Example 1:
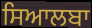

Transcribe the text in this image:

ਸਿਆਲਬਾ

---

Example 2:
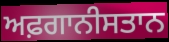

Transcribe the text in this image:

ਅਫ਼ਗਾਨੀਸਤਾਨ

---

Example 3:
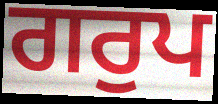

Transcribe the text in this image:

ਗਰੁਪ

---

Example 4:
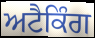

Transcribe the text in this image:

ਅਟੈਕਿੰਗ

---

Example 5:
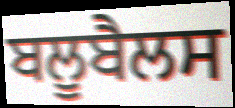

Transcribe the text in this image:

ਬਲੂਬੈਲਸ